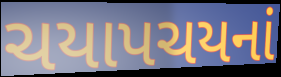
ચયાપચયનાં